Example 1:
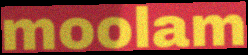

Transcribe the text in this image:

moolam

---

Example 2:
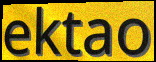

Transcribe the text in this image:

ektao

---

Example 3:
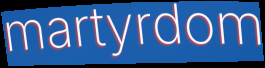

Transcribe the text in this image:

martyrdom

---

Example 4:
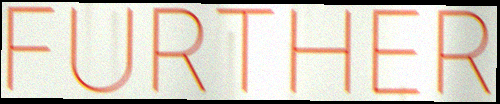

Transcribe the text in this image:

FURTHER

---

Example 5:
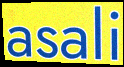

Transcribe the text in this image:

asali